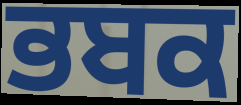
ਭਬਕ